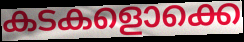
കടകളൊക്കെ